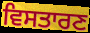
ਵਿਸਤਾਰਣ